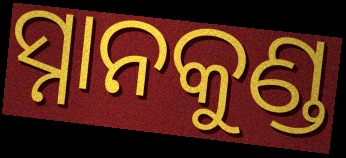
ସ୍ନାନକୁଣ୍ଡ